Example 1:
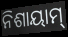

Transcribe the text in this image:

ନିଶାୟାମ୍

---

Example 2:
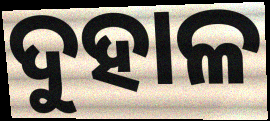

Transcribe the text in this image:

ଦୁହାଳ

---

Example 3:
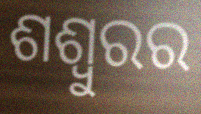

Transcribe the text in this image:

ଶଶ୍ୱୁରର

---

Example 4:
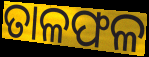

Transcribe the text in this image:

ତାଳଫଳ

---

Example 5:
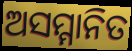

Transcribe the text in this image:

ଅସମ୍ମାନିତ